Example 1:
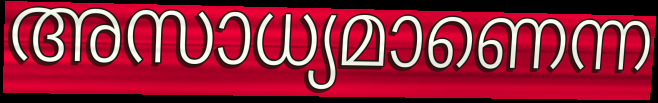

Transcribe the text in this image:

അസാധ്യമാണെന്ന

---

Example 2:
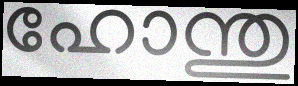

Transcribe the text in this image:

ഹോന്തു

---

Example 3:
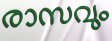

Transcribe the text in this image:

രാസവും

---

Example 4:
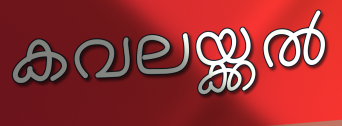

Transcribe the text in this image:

കവലയ്ക്കൽ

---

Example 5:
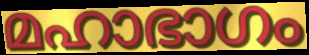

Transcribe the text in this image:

മഹാഭാഗം